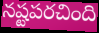
నష్టపరచింది